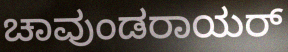
ಚಾವುಂಡರಾಯರ್